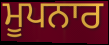
ਮੂਪਨਾਰ